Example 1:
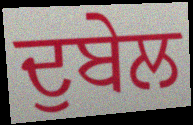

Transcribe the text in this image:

ਦੁਬੇਲ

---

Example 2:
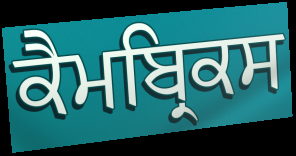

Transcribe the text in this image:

ਕੈਮਬ੍ਰਿਕਸ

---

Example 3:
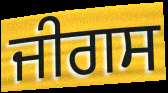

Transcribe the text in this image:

ਜੀਗਸ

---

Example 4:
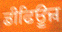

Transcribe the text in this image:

ਡੀਫਿਊਜ਼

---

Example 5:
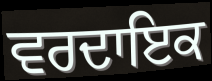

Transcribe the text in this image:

ਵਰਦਾਇਕ